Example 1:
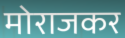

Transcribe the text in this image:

मोराजकर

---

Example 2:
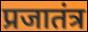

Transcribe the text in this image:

प्रजातंत्र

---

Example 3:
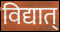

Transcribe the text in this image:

विद्यात्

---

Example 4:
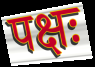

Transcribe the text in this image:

पक्षः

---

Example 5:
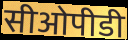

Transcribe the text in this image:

सीओपीडी